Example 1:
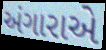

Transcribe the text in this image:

અંગારાએ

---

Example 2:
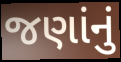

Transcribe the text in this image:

જણાંનું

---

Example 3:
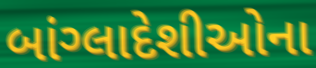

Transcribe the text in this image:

બાંગ્લાદેશીઓના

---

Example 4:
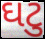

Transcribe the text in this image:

ઘટુ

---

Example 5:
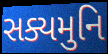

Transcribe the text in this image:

સક્યમુનિ